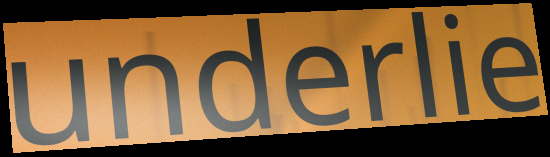
underlie